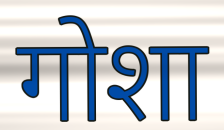
गोशा